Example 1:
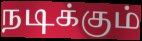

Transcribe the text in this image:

நடிக்கும்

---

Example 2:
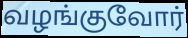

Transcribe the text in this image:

வழங்குவோர்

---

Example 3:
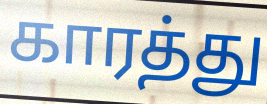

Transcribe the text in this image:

காரத்து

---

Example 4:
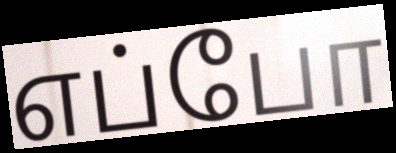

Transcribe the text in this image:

எப்போ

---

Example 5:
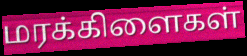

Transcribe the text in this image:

மரக்கிளைகள்